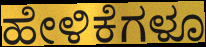
ಹೇಳಿಕೆಗಳೂ